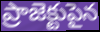
ప్రాజెక్టుపైన